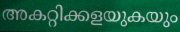
അകറ്റിക്കളയുകയും